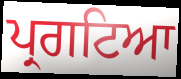
ਪ੍ਰਗਟਿਆ